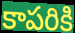
కాపరికి